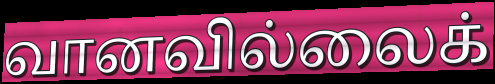
வானவில்லைக்